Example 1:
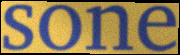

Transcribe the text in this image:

sone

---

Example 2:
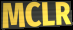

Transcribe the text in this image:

MCLR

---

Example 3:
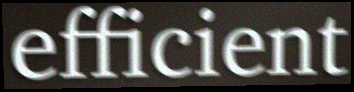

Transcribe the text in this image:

efficient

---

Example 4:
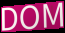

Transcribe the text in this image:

DOM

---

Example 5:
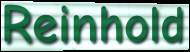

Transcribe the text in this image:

Reinhold